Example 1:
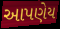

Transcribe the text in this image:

આપણેય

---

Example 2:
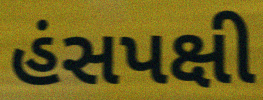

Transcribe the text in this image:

હંસપક્ષી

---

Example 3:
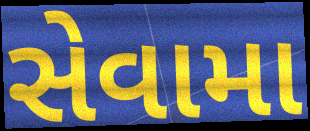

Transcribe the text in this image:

સેવામા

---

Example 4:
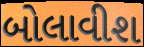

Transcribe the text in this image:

બોલાવીશ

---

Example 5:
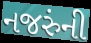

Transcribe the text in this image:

નજરુંની